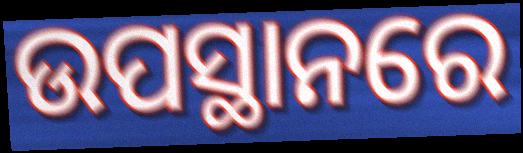
ଉପସ୍ଥାନରେ